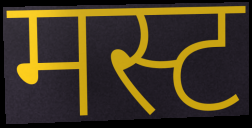
मस्ट